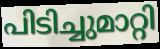
പിടിച്ചുമാറ്റി